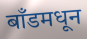
बाँडमधून